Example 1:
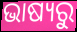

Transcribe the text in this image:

ଭାଷ୍ୟରୁ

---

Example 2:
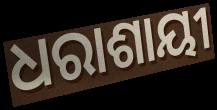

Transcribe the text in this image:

ଧରାଶାୟୀ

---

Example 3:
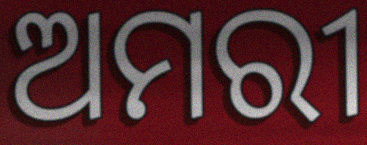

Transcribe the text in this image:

ଅମରୀ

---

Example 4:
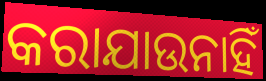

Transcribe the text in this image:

କରାଯାଉନାହିଁ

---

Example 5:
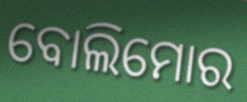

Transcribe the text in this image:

ବୋଲିମୋର